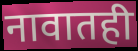
नावातही